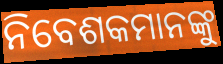
ନିବେଶକମାନଙ୍କୁ